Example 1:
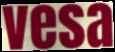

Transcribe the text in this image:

vesa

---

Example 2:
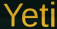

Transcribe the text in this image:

Yeti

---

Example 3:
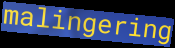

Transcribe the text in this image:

malingering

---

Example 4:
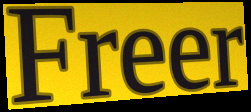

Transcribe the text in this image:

Freer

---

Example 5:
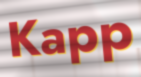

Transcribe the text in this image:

Kapp